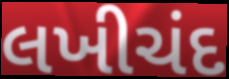
લખીચંદ